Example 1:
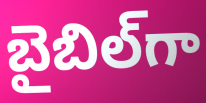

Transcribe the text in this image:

బైబిల్‌గా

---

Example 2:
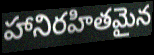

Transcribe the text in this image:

హానిరహితమైన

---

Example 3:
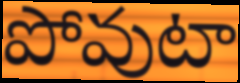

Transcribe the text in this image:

పోవుటా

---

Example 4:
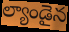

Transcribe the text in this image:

ల్యాండైన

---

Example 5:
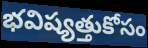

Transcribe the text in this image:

భవిష్యత్తుకోసం